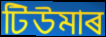
টিউমাৰ